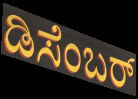
ಡಿಸೆಂಬರ್